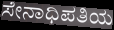
ಸೇನಾಧಿಪತಿಯ